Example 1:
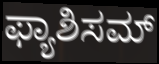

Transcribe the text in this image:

ಫ್ಯಾಶಿಸಮ್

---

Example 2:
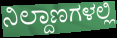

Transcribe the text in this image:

ನಿಲ್ದಾಣಗಳಲ್ಲಿ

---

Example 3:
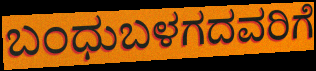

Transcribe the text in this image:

ಬಂಧುಬಳಗದವರಿಗೆ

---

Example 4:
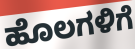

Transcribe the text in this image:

ಹೊಲಗಳಿಗೆ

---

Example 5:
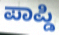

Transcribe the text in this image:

ಪಾಪ್ಡಿ